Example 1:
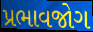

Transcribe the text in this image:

પ્રભાવજોગ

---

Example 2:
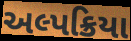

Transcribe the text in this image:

અલ્પક્રિયા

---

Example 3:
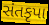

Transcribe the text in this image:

સંતકૃપા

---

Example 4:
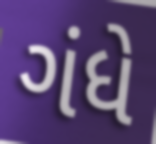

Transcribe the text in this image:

ગંધે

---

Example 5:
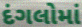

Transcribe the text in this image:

દંગલોમાં